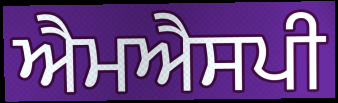
ਐਮਐਸਪੀ